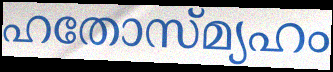
ഹതോസ്മ്യഹം